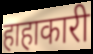
हाहाकारी